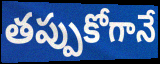
తప్పుకోగానే